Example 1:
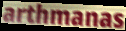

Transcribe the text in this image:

arthmanas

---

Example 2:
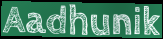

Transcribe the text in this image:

Aadhunik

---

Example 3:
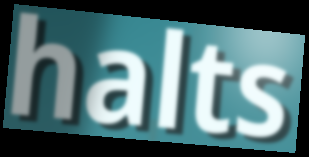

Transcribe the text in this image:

halts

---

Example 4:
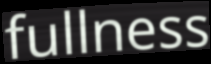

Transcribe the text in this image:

fullness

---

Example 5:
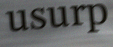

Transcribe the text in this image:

usurp